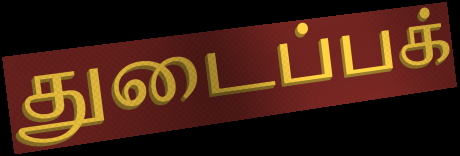
துடைப்பக்